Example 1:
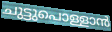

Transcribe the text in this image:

ചുട്ടുപൊള്ളാൻ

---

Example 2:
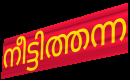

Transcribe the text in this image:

നീട്ടിത്തന്ന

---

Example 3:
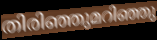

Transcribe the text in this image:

തിരിഞ്ഞുമറിഞ്ഞു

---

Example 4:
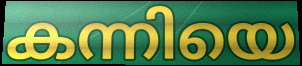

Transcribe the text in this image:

കന്നിയെ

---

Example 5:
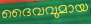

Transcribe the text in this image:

ദൈവവുമായ